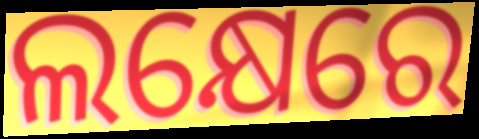
ଲକ୍ଷେରେ